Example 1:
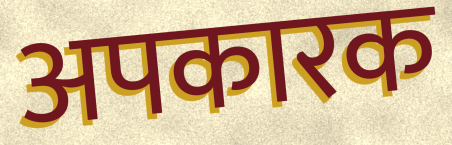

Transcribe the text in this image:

अपकारक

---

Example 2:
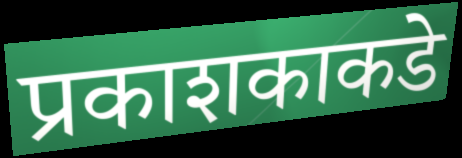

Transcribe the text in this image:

प्रकाशकाकडे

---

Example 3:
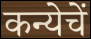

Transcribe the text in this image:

कन्येचें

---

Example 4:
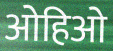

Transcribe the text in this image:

ओहिओ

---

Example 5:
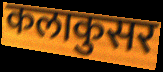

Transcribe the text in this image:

कलाकुसर